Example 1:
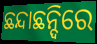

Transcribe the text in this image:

ଛନ୍ଦାଛନ୍ଦିରେ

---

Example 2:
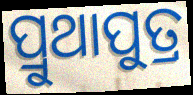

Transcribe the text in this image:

ପ୍ରୁଥାପୁତ୍ର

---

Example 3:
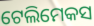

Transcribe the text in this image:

ଟେଲିମେକସ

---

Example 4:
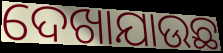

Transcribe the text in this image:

ଦେଖାଯାଉଛ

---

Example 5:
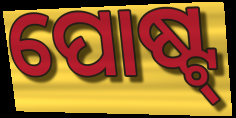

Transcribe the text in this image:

ପୋଷ୍ଟ୍